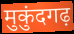
मुकुंदगढ़